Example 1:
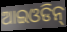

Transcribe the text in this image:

ଆଇଓଡିନ୍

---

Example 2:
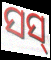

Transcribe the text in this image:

ସସ୍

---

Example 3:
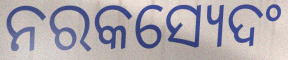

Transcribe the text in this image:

ନରକସ୍ୟେଦଂ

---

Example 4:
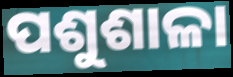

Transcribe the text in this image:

ପଶୁଶାଳା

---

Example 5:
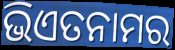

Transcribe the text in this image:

ଭିଏତନାମର